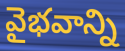
వైభవాన్ని